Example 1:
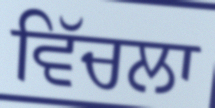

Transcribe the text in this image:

ਵਿੱਚਲਾ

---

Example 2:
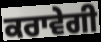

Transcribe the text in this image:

ਕਰਾਵੇਗੀ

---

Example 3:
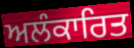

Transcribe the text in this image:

ਅਲੰਕਾਰਿਤ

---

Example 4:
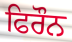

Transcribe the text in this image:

ਫਿਰੌਨ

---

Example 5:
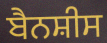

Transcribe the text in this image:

ਬੈਨਸ਼ੀਸ